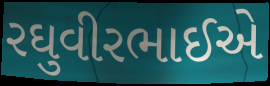
રઘુવીરભાઈએ